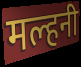
मल्हनी